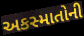
અકસ્માતોની